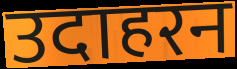
उदाहरन